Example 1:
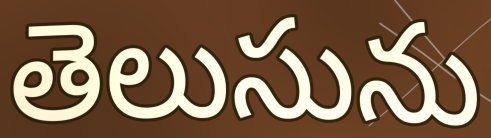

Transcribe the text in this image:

తెలుసును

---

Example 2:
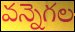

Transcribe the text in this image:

వన్నెగల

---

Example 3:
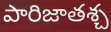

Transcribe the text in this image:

పారిజాతశ్చ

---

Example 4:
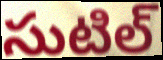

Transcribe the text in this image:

సుటిల్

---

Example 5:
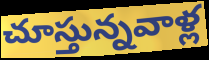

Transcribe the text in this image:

చూస్తున్నవాళ్ల